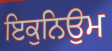
ਇਕੁਨਿਉਮ